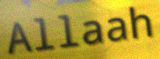
Allaah